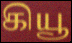
கியூ